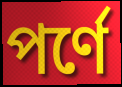
পর্ণে